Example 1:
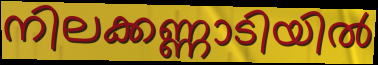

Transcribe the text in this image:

നിലക്കണ്ണാടിയിൽ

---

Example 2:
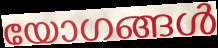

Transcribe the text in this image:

യോഗങ്ങൾ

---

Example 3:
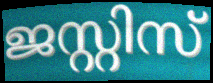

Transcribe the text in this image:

ജസ്റ്റിസ്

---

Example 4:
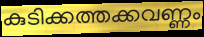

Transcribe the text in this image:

കുടിക്കത്തക്കവണ്ണം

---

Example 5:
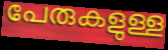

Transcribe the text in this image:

പേരുകളുള്ള